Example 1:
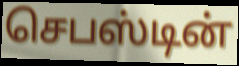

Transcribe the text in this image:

செபஸ்டின்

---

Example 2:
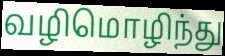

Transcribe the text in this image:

வழிமொழிந்து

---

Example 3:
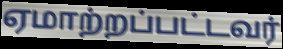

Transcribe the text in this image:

ஏமாற்றப்பட்டவர்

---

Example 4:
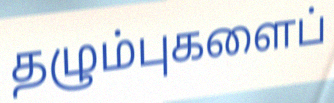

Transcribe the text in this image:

தழும்புகளைப்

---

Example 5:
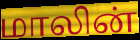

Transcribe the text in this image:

மாலின்